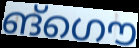
ങ്ഗൌ